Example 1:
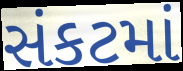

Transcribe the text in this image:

સંકટમાં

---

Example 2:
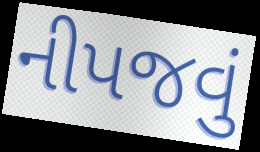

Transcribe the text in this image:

નીપજવું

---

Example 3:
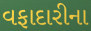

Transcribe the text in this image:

વફાદારીના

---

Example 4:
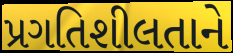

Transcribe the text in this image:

પ્રગતિશીલતાને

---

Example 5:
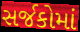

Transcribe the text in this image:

સર્જકોમાં